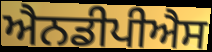
ਐਨਡੀਪੀਐਸ